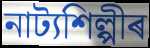
নাট্যশিল্পীৰ